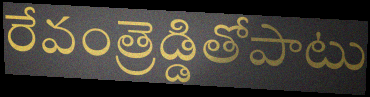
రేవంత్రెడ్డితోపాటు